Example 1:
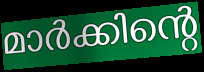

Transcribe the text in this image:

മാർക്കിന്റെ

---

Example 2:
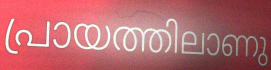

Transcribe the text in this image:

പ്രായത്തിലാണു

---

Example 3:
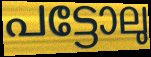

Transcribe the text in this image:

പട്ടോലു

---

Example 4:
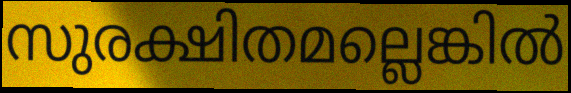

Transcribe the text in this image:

സുരക്ഷിതമല്ലെങ്കിൽ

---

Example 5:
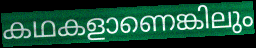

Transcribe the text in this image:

കഥകളാണെങ്കിലും